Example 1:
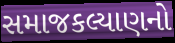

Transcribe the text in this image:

સમાજકલ્યાણનો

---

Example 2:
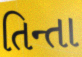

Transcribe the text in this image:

તિન્તા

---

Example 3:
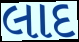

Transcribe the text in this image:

લાદ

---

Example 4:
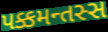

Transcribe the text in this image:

પક્કમન્તસ્સ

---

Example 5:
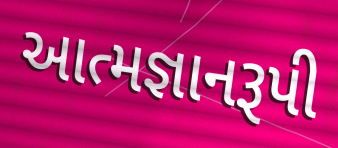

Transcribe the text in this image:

આત્મજ્ઞાનરૂપી